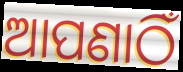
ଆପଣାଠିଁ